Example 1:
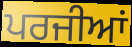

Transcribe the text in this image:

ਪਰਜੀਆਂ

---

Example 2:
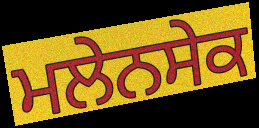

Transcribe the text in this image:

ਮਲੇਨਸੇਕ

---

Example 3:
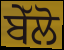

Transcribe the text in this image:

ਬੇੱਲੋ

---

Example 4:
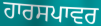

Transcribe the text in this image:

ਹਾਰਸਪਾਵਰ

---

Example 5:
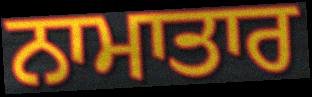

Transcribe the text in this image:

ਨਾਮਾਤਾਰ